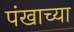
पंखाच्या